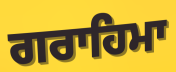
ਗਰਾਹਿਮਾ